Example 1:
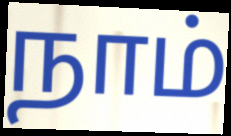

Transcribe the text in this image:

நாம்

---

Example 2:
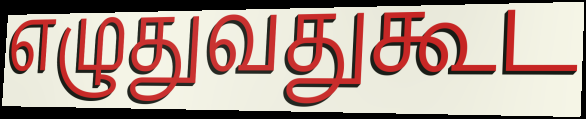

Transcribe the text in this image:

எழுதுவதுகூட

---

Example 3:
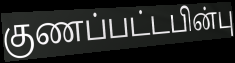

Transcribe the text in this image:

குணப்பட்டபின்பு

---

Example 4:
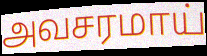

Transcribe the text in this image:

அவசரமாய்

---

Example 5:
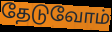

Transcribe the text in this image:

தேடுவோம்